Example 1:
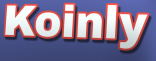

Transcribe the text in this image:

Koinly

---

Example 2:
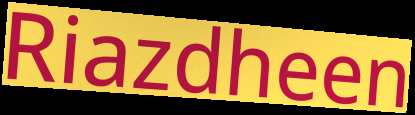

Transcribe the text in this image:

Riazdheen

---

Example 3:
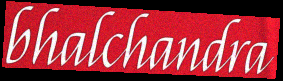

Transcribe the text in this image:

bhalchandra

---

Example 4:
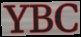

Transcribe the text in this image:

YBC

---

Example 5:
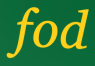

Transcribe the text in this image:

fod